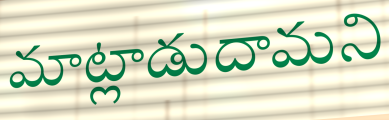
మాట్లాడుదామని